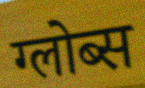
ग्लोब्स